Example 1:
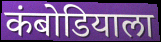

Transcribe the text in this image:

कंबोडियाला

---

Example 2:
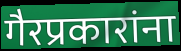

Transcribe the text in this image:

गैरप्रकारांना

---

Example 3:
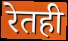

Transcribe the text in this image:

रेतही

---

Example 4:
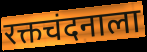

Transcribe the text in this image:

रक्तचंदनाला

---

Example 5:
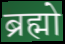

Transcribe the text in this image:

ब्रह्मो